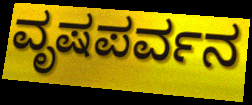
ವೃಷಪರ್ವನ